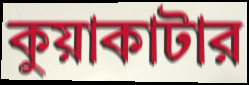
কুয়াকাটার